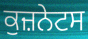
ਕੁਜ਼ਨੇਟਸ